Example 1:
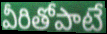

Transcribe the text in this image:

వీరితోపాటే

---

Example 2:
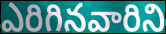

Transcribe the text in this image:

ఎరిగినవారిని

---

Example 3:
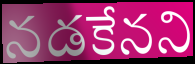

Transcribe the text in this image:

నడకేనని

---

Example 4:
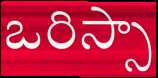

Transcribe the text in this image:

ఒరిస్సా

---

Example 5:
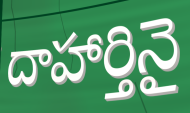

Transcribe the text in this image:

దాహార్తినై